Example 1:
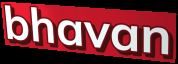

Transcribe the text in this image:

bhavan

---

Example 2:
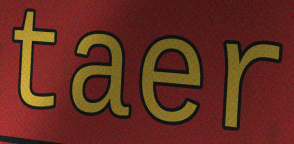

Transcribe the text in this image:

taer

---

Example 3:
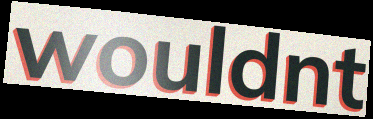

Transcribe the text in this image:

wouldnt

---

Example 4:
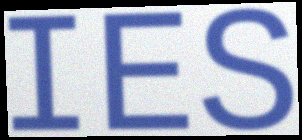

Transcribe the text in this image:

IES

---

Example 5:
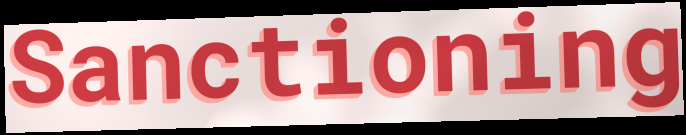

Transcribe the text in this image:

Sanctioning